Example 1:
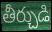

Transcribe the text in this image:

తీర్చుడి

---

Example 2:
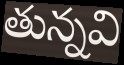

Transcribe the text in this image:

తున్నవి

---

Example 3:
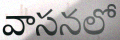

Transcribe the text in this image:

వాసనలో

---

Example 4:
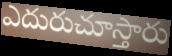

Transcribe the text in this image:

ఎదురుచూస్తారు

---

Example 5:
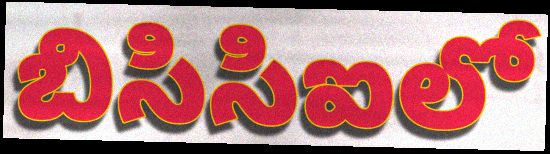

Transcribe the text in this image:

బిసిసిఐలో